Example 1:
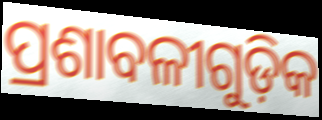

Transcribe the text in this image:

ପ୍ରଶାବଳୀଗୁଡ଼ିକ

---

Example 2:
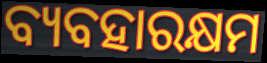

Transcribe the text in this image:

ବ୍ୟବହାରକ୍ଷମ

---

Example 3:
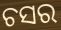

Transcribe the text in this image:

ଚସର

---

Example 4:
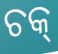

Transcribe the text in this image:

ଚକ୍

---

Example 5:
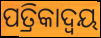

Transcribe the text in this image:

ପତ୍ରିକାଦ୍ୱୟ